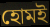
হোমই